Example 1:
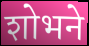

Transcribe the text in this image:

शोभने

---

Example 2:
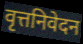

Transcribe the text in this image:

वृत्तनिवेदन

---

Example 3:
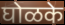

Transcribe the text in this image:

घोळके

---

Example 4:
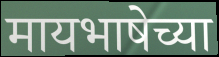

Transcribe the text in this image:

मायभाषेच्या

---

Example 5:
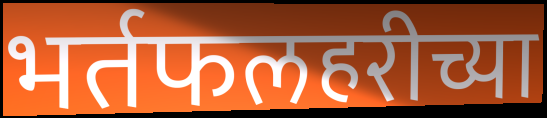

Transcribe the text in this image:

भर्तफलहरीच्या